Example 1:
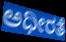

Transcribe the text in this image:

ಅಧೀರತೆ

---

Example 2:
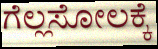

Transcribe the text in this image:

ಗೆಲ್ಲಸೋಲಕ್ಕೆ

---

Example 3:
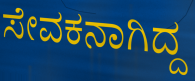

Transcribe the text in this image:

ಸೇವಕನಾಗಿದ್ದ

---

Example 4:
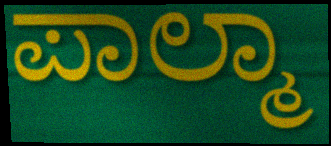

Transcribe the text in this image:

ಪಾಲ್ಮಾ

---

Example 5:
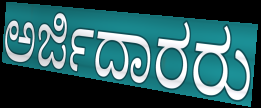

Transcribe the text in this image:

ಅರ್ಜಿದಾರರು